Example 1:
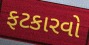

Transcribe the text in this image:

ફટકારવો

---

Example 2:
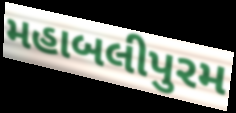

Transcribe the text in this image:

મહાબલીપુરમ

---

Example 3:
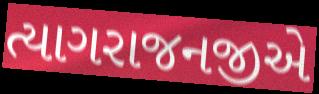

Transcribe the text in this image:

ત્યાગરાજનજીએ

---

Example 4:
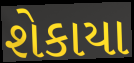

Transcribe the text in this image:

શેકાયા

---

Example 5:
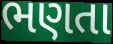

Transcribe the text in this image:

ભણતા